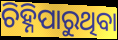
ଚିହ୍ନିପାରୁଥିବା